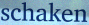
schaken